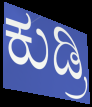
ಕುಡ್ರಿ